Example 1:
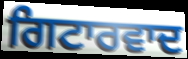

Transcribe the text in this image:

ਗਿਟਾਰਵਾਦ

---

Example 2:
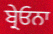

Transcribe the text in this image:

ਬ੍ਰੇਓਨਾ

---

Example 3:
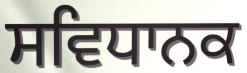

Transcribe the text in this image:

ਸਵਿਧਾਨਕ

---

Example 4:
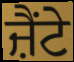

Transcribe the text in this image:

ਜ਼ੈਂਟੇ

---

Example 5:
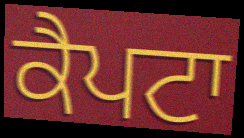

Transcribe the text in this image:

ਕੈਪਟਾ